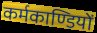
कर्मकाण्डियों